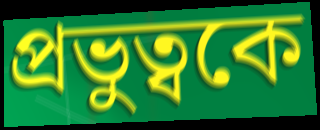
প্রভুত্বকে